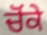
ਚੋਂਕੇ